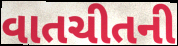
વાતચીતની